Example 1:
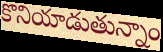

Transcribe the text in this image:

కొనియాడుతున్నాం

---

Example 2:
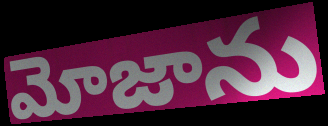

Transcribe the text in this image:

మోజాను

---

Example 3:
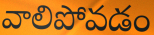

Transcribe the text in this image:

వాలిపోవడం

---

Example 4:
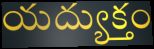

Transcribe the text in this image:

యద్యుక్తం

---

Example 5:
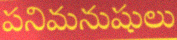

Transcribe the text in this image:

పనిమనుషులు